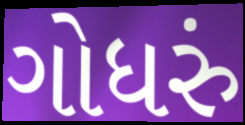
ગોધરું